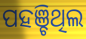
ପହଞ୍ଚିଥିଲ